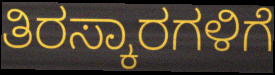
ತಿರಸ್ಕಾರಗಳಿಗೆ